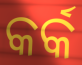
କର୍କ